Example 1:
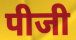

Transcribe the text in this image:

पीजी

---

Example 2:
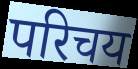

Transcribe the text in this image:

परिचय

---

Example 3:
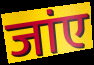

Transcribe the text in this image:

जांए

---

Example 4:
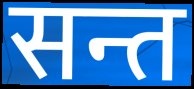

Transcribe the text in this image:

सन्त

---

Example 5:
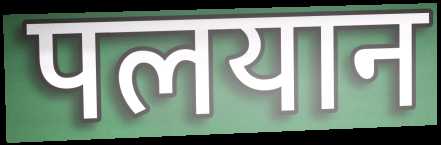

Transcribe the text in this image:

पलयान